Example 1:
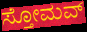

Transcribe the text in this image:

ಸ್ತೋಮವ್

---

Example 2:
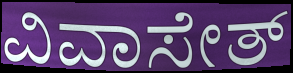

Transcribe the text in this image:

ವಿವಾಸೇತ್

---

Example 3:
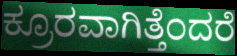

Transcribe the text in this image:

ಕ್ರೂರವಾಗಿತ್ತೆಂದರೆ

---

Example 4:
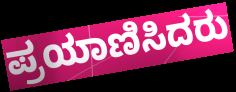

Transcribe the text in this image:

ಪ್ರಯಾಣಿಸಿದರು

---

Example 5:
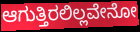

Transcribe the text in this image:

ಆಗುತ್ತಿರಲಿಲ್ಲವೇನೋ